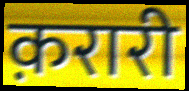
क़रारी